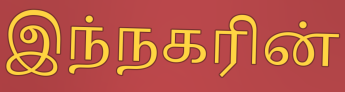
இந்நகரின்